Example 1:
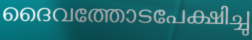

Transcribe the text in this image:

ദൈവത്തോടപേക്ഷിച്ചു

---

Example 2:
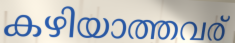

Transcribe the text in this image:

കഴിയാത്തവര്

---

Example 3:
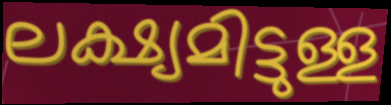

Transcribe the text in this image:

ലക്ഷ്യമിട്ടുള്ള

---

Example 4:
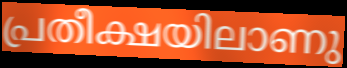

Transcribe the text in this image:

പ്രതീക്ഷയിലാണു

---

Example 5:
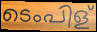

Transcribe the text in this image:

ടെംപിള്